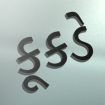
કૂકડે